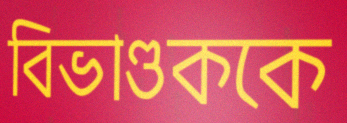
বিভাণ্ডককে